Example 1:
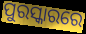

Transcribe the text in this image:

ପୁରସ୍କାରରେ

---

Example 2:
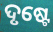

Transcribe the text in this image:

ଦୃଷ୍ଟେ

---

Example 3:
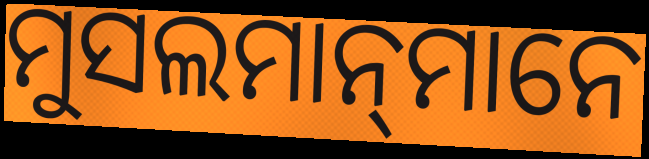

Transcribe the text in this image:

ମୁସଲମାନ୍‌ମାନେ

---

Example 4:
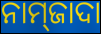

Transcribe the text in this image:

ନାମ୍‍ଜାଦା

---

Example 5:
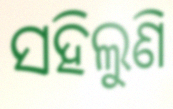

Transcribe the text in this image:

ସହିଲୁଣି